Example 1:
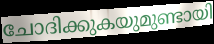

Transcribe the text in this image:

ചോദിക്കുകയുമുണ്ടായി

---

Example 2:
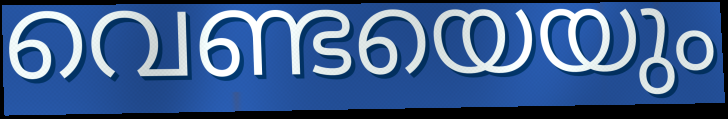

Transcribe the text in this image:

വെണ്ടയെയും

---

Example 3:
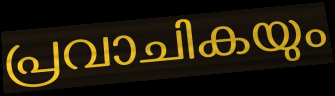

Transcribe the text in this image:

പ്രവാചികയും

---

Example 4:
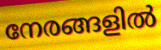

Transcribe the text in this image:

നേരങ്ങളിൽ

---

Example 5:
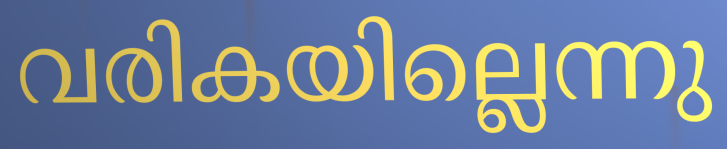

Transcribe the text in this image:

വരികയില്ലെന്നു